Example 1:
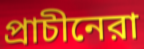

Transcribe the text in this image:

প্রাচীনেরা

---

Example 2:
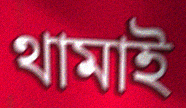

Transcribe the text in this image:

থামাই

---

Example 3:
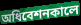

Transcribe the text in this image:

অধিবেশনকালে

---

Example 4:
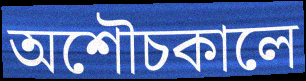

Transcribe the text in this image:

অশৌচকালে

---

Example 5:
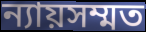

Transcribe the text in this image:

ন্যায়সম্মত